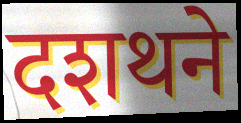
दशथने